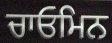
ਚਾਓਮਿਨ